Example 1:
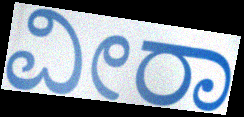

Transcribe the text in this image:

ವೀರಾ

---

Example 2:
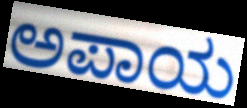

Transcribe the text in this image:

ಅಪಾಯ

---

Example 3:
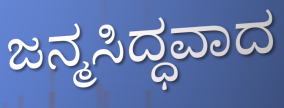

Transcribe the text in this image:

ಜನ್ಮಸಿದ್ಧವಾದ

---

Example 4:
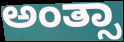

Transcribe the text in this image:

ಅಂತ್ಸಾ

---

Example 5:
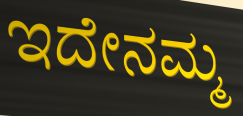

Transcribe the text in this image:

ಇದೇನಮ್ಮ